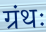
ग्रंथः